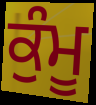
ਕੁੰਮੂ